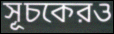
সূচকেরও